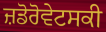
ਜ਼ਡੋਰੋਵੇਟਸਕੀ